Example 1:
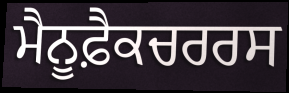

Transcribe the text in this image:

ਮੈਨੂਫ਼ੈਕਚਰਰਸ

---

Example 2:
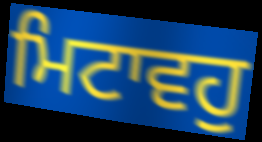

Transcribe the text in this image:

ਮਿਟਾਵਹੁ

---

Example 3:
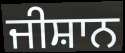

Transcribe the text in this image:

ਜੀਸ਼ਾਨ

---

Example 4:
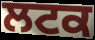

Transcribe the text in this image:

ਲਟਕ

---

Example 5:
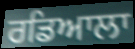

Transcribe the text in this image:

ਰਡਿਆਲਾ